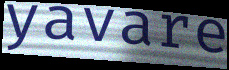
yavare